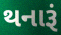
થનારૂં